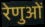
रेणुओं